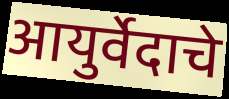
आयुर्वेदाचे